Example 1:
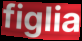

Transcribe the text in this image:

figlia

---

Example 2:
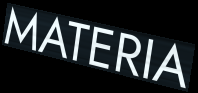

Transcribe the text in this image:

MATERIA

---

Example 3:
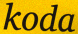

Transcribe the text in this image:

koda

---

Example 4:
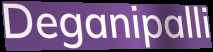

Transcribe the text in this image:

Deganipalli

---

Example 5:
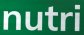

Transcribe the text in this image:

nutri